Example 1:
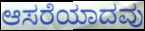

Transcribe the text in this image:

ಆಸರೆಯಾದವು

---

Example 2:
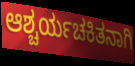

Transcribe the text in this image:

ಆಶ್ಚರ್ಯಚಕಿತನಾಗಿ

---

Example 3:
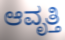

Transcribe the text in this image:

ಆವೃತ್ತಿ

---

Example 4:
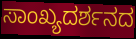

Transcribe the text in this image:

ಸಾಂಖ್ಯದರ್ಶನದ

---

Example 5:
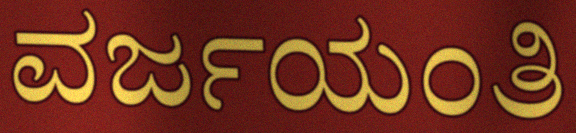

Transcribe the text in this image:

ವರ್ಜಯಂತಿ